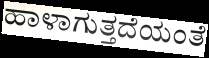
ಹಾಳಾಗುತ್ತದೆಯಂತೆ